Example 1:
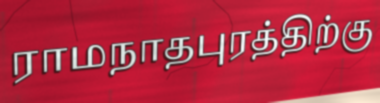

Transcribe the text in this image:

ராமநாதபுரத்திற்கு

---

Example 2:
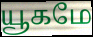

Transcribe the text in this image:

யூகமே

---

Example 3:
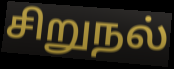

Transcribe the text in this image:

சிறுநல்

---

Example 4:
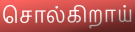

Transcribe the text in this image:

சொல்கிறாய்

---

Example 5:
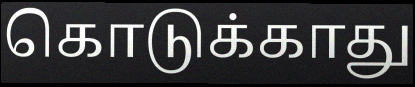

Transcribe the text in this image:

கொடுக்காது